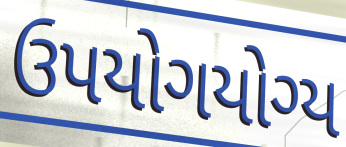
ઉપયોગયોગ્ય